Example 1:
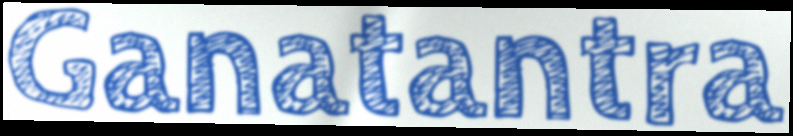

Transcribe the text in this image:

Ganatantra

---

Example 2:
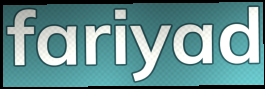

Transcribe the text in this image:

fariyad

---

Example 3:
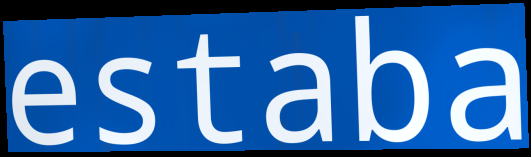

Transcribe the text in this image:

estaba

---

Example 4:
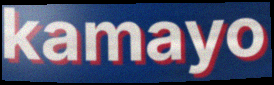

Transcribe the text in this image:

kamayo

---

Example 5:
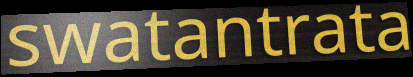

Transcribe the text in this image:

swatantrata